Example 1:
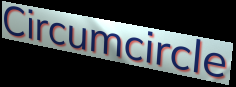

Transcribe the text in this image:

Circumcircle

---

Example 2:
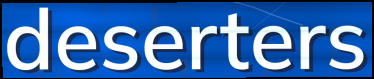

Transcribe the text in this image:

deserters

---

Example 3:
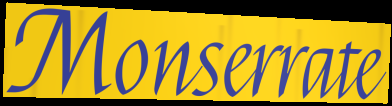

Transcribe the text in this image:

Monserrate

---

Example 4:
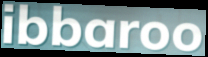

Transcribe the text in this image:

ibbaroo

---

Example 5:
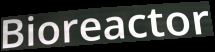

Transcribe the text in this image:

Bioreactor